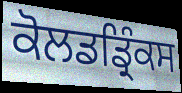
ਕੋਲਡਡ੍ਰਿੰਕਸ